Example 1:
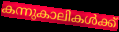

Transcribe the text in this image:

കന്നുകാലികൾക്ക്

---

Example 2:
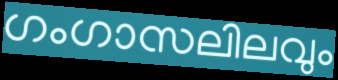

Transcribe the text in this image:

ഗംഗാസലിലവും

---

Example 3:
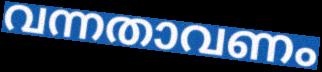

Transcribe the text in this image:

വന്നതാവണം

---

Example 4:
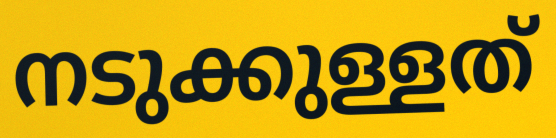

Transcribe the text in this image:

നടുക്കുള്ളത്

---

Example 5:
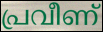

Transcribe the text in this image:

പ്രവീണ്